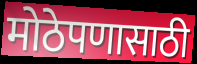
मोठेपणासाठी